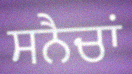
ਸਨੈਚਾਂ